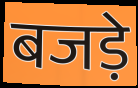
बजड़े